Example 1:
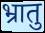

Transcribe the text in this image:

भ्रातु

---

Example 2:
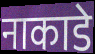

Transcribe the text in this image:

नाकाडे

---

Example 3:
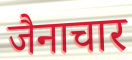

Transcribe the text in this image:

जैनाचार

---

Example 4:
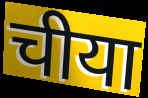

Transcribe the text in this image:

चीया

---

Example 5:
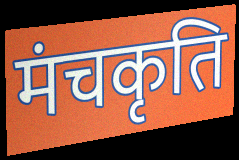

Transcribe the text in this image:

मंचकृति